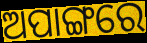
ଅପାଙ୍ଗରେ